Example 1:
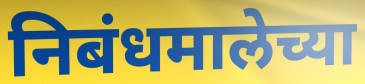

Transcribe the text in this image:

निबंधमालेच्या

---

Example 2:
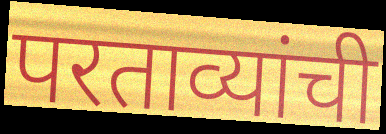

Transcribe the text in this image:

परताव्यांची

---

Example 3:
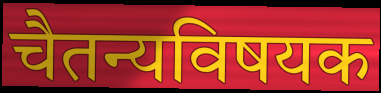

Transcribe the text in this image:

चैतन्यविषयक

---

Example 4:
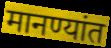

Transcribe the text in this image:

मानण्यांत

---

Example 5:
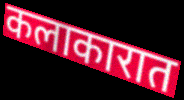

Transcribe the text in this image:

कलाकारात